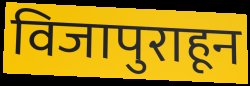
विजापुराहून